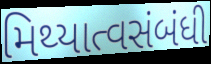
મિથ્યાત્વસંબંધી